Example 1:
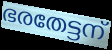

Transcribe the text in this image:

ഭരതേട്ടന്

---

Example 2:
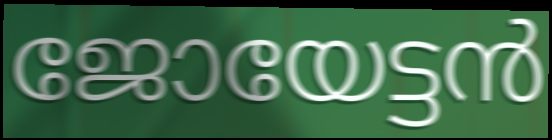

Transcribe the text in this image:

ജോയേട്ടൻ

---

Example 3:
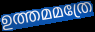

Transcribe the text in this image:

ഉത്തമമത്രേ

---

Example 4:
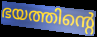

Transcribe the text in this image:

ഭയത്തിന്റെ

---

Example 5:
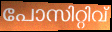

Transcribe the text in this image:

പോസിറ്റിവ്